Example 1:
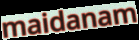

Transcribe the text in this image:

maidanam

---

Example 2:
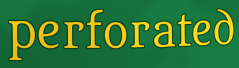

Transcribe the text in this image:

perforated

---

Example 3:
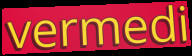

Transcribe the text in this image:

vermedi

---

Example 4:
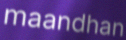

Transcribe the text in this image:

maandhan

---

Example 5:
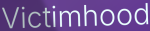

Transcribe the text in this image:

Victimhood